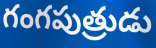
గంగపుత్రుడు